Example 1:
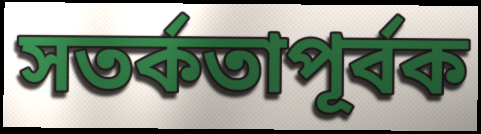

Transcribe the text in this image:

সতর্কতাপূর্বক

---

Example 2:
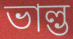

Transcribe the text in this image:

ভাল্ভ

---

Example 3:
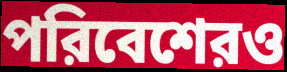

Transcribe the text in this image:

পরিবেশেরও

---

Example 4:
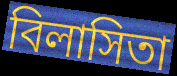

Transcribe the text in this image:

বিলাসিতা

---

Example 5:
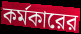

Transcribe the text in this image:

কর্মকারের